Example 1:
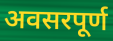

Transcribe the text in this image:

अवसरपूर्ण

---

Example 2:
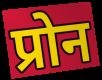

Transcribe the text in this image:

प्रोन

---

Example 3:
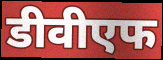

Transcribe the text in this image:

डीवीएफ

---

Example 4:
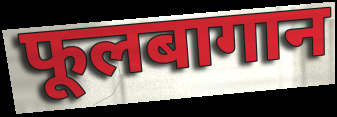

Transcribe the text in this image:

फूलबागान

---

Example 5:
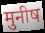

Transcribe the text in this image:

मुनीष